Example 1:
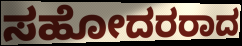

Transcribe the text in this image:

ಸಹೋದರರಾದ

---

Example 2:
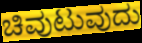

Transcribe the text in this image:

ಚಿವುಟುವುದು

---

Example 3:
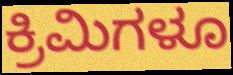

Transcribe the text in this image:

ಕ್ರಿಮಿಗಳೂ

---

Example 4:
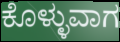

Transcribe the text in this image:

ಕೊಳ್ಳುವಾಗ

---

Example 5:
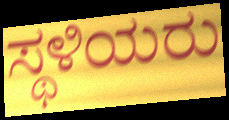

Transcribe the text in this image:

ಸ್ಥಳಿಯರು